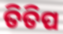
ତିତିପ